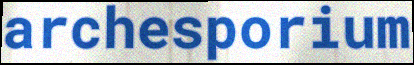
archesporium